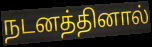
நடனத்தினால்